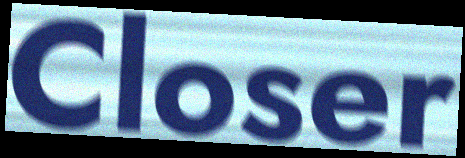
Closer